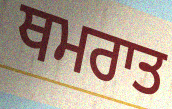
ਥਮਰਾਤ